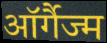
ऑर्गैज्म